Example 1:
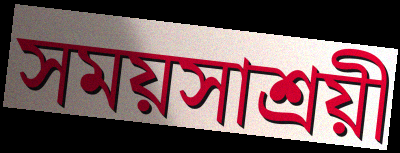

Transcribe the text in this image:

সময়সাশ্রয়ী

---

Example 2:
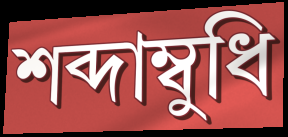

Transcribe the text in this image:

শব্দাম্বুধি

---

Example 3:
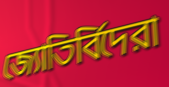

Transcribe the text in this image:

জ্যোতির্বিদেরা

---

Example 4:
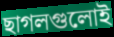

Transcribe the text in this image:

ছাগলগুলোই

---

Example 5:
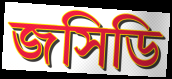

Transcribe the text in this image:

জসিডি